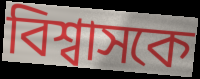
বিশ্বাসকে